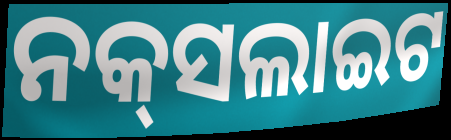
ନକ୍‌ସଲାଇଟ